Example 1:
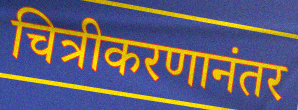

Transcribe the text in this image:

चित्रीकरणानंतर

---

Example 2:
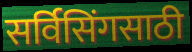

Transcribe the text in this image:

सर्विसिंगसाठी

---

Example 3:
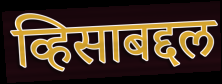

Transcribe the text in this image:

व्हिसाबद्दल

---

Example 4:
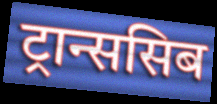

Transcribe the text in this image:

ट्रान्ससिब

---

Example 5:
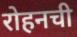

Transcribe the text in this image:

रोहनची